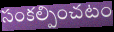
సంకల్పించటం